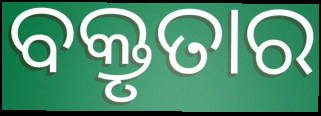
ବକ୍ତୃତାର